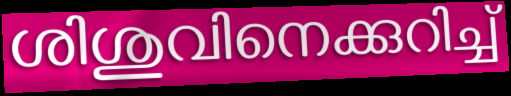
ശിശുവിനെക്കുറിച്ച്